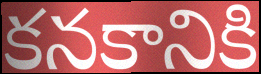
కనకానికి